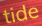
tide